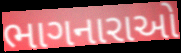
ભાગનારાઓ